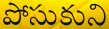
పోసుకుని